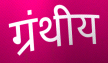
ग्रंथीय